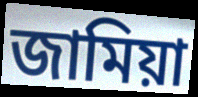
জামিয়া